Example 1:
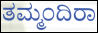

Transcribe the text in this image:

ತಮ್ಮಂದಿರಾ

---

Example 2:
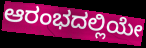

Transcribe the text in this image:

ಆರಂಭದಲ್ಲಿಯೇ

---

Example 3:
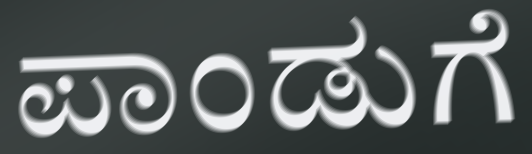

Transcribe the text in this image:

ಪಾಂಡುಗೆ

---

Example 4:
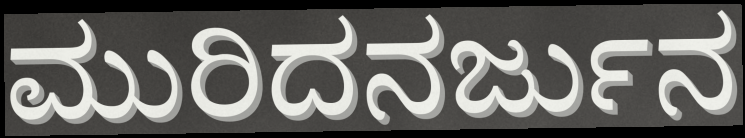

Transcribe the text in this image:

ಮುರಿದನರ್ಜುನ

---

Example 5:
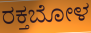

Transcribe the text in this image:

ರಕ್ತಬೋಳ